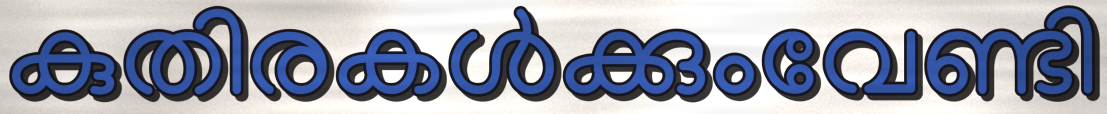
കുതിരകൾക്കുംവേണ്ടി